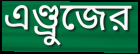
এণ্ড্রুজের